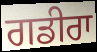
ਗਡੀਰਾ